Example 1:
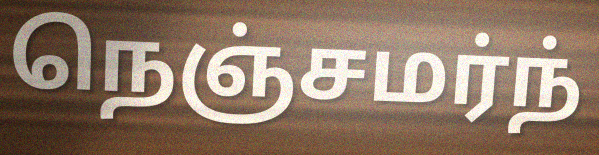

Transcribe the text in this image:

நெஞ்சமர்ந்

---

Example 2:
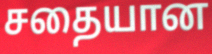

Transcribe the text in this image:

சதையான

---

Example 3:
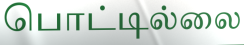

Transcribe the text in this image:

பொட்டில்லை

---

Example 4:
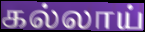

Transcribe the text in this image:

கல்லாய்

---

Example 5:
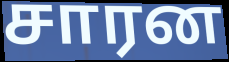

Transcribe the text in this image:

சாரன